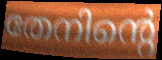
തേനിന്റെ